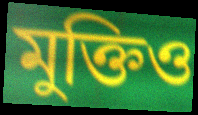
মুক্তিও